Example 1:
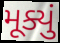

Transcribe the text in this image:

મૂક્યું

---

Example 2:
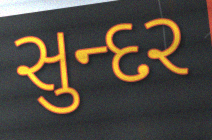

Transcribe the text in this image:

સુન્દર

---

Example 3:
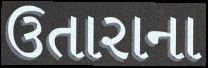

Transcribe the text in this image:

ઉતારાના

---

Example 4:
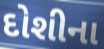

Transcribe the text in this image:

દોશીના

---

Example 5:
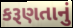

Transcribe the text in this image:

કરૂણતાનું